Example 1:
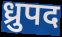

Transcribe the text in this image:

ध्रुपद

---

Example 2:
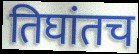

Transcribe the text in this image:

तिघांतच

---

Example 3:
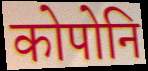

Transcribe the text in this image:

कोपोनि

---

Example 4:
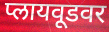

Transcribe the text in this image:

प्लायवूडवर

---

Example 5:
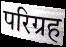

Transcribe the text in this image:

परिग्रह